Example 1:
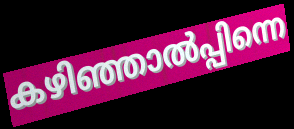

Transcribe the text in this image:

കഴിഞ്ഞാൽപ്പിന്നെ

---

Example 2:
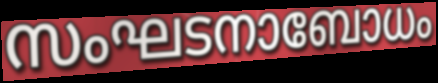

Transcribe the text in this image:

സംഘടനാബോധം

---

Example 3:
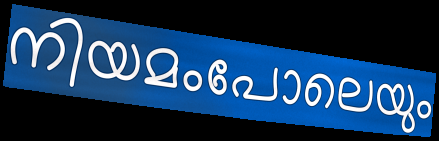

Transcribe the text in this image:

നിയമംപോലെയും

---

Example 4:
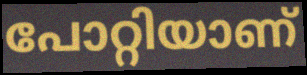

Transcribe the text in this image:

പോറ്റിയാണ്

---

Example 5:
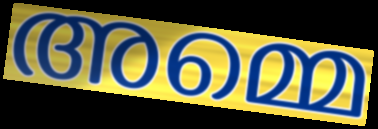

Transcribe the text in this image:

അമ്മെ